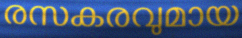
രസകരവുമായ